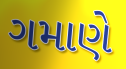
ગમાણે